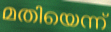
മതിയെന്ന്